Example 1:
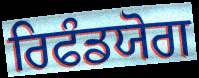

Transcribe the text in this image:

ਰਿਫੰਡਯੋਗ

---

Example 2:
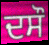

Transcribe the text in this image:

ਦਸੌ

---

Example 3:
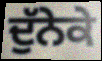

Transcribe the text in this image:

ਦੁੱਨੇਕੇ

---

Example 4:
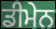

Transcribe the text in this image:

ਡੀਮੇਨ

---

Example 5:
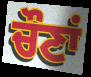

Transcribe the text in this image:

ਚੌਣਾਂ